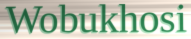
Wobukhosi